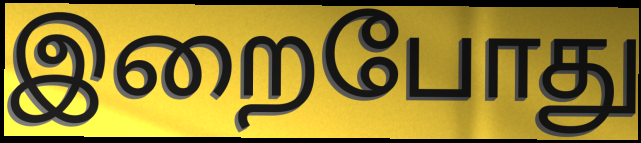
இறைபோது